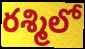
రశ్మిలో